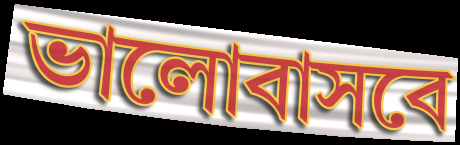
ভালোবাসবে